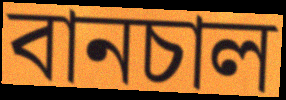
বানচাল